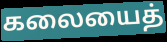
கலையைத்